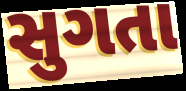
સુગતા